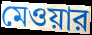
মেওয়ার